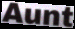
Aunt